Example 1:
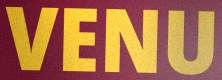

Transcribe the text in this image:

VENU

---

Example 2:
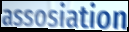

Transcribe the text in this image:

assosiation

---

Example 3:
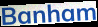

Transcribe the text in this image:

Banham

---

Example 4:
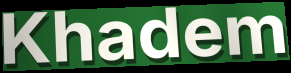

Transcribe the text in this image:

Khadem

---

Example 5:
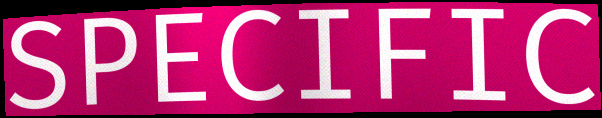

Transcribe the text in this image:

SPECIFIC